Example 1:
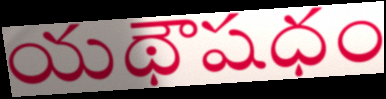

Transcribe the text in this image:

యథౌషధం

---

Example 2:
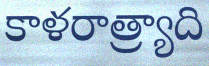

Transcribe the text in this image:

కాళరాత్ర్యాది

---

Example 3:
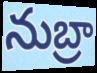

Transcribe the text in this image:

నుబ్రా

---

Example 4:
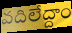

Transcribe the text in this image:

వదిలేద్దాం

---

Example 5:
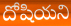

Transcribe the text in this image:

దోషియని